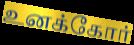
உனக்கோர்